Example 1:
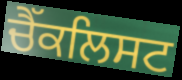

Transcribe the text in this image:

ਚੈੱਕਲਿਸਟ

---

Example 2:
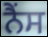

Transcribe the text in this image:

ਨੈਂਸ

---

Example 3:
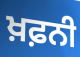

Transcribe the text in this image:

ਖ਼ਫ਼ਨੀ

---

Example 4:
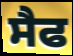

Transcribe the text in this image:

ਸੈਫ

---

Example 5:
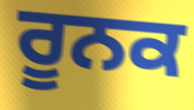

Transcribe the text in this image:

ਰੂਨਕ